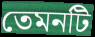
তেমনটি